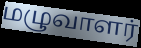
மழுவாளர்